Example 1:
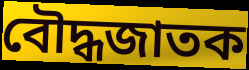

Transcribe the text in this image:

বৌদ্ধজাতক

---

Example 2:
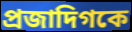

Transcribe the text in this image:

প্রজাদিগকে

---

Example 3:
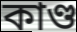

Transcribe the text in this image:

কাণ্ড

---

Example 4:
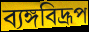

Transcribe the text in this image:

ব্যঙ্গবিদ্রূপ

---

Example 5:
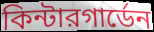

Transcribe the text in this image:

কিন্টারগার্ডেন